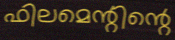
ഫിലമെന്റിന്റെ